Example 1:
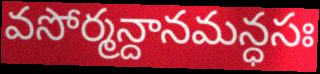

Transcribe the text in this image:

వసోర్మన్దానమన్ధసః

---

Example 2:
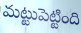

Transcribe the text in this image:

మట్టుపెట్టింది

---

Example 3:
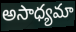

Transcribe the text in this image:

అసాధ్యమా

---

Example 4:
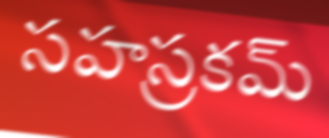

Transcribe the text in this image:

సహస్రకమ్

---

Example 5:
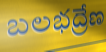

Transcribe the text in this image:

బలభద్రేణ